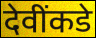
देवींकडे